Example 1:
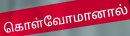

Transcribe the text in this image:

கொள்வோமானால்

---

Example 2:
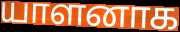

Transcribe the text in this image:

யாளனாக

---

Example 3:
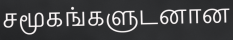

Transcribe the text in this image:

சமூகங்களுடனான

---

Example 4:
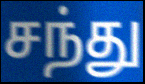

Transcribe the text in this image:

சந்து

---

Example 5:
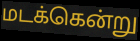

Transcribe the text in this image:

மடக்கென்று